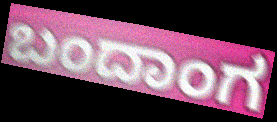
ಬಂದಾಂಗ